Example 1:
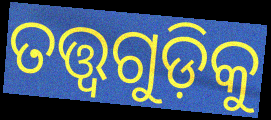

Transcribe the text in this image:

ତତ୍ତ୍ୱଗୁଡ଼ିକୁ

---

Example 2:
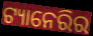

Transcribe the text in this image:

ଟ୍ୟାନେରିର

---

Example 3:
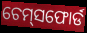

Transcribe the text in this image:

ଚେମ୍‌ସଫୋର୍ଡ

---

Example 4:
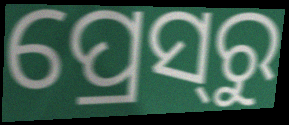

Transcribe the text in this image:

ପ୍ରେସ୍‌ରୁ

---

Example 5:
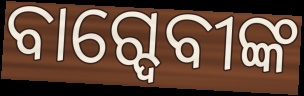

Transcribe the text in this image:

ବାଗ୍ଦେବୀଙ୍କ